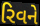
રિવને